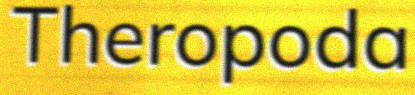
Theropoda